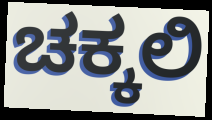
ಚಕ್ಕಲಿ